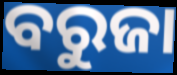
ବରୁଜା